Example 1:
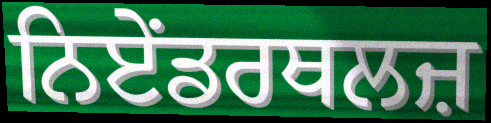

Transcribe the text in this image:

ਨਿਏਂਡਰਥਲਜ਼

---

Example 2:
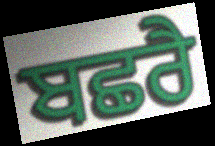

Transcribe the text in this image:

ਬਛਰੈ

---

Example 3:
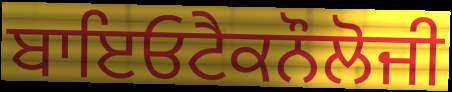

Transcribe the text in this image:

ਬਾਇਓਟੈਕਨੌਲੋਜੀ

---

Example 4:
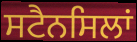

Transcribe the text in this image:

ਸਟੈਨਸਿਲਾਂ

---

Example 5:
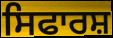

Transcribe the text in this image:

ਸਿਫਾਰਸ਼